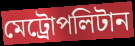
মেট্রোপলিটান